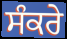
ਸੰਕਰੇ